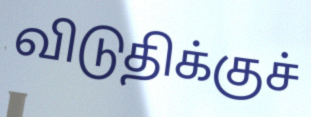
விடுதிக்குச்